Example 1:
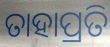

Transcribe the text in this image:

ତାହାପ୍ରତି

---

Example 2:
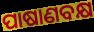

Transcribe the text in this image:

ପାଷାଣବକ୍ଷ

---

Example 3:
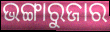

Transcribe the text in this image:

ଭଙ୍ଗାରୁଜାର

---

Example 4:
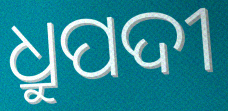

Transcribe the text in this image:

ଧ୍ରୁପଦୀ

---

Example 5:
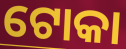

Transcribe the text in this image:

ଟୋକା